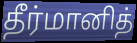
தீர்மானித்